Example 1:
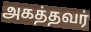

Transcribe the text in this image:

அகத்தவர்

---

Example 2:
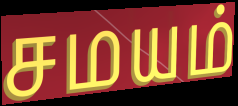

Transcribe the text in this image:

சமயம்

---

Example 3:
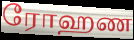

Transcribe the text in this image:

ரோஹண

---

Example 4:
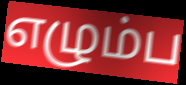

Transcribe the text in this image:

எழும்ப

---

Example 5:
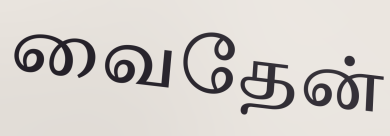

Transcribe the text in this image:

வைதேன்